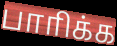
பாரிக்க